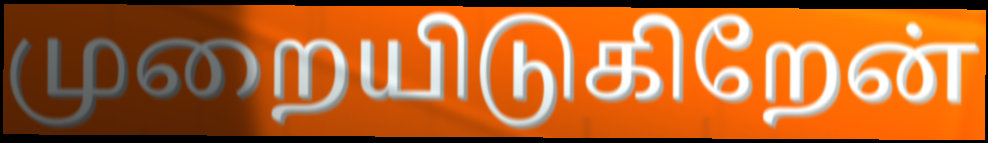
முறையிடுகிறேன்